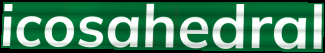
icosahedral